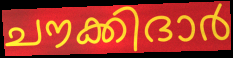
ചൗക്കിദാർ